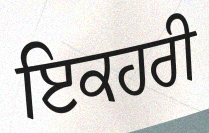
ਇਕਹਰੀ